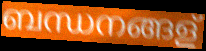
ബന്ധനങ്ങള്